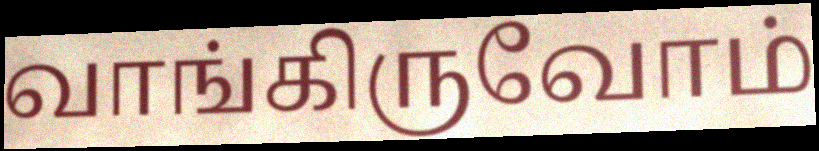
வாங்கிருவோம்